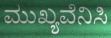
ಮುಖ್ಯವೆನಿಸಿ